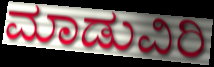
ಮಾಡುವಿರಿ